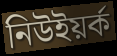
নিউইয়ৰ্ক